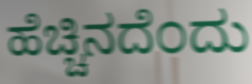
ಹೆಚ್ಚಿನದೆಂದು